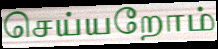
செய்யறோம்